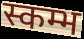
स्कम्भ